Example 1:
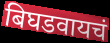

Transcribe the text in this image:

बिघडवायचं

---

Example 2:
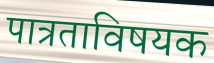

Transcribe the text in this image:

पात्रताविषयक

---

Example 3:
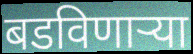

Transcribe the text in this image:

बडविणाऱ्या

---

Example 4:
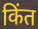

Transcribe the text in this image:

किंत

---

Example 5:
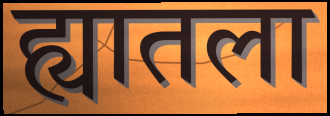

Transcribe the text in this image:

ह्यातला